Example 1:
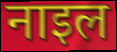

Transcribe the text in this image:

नाइल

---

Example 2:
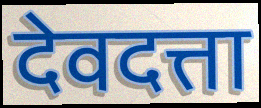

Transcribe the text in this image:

देवदत्ता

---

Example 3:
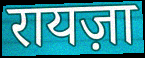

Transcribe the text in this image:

रायज़ा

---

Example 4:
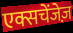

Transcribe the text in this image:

एक्सचेंजेज़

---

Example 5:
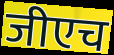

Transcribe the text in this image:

जीएच